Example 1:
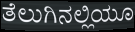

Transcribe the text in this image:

ತೆಲುಗಿನಲ್ಲಿಯೂ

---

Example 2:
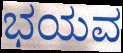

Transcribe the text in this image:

ಭಯವ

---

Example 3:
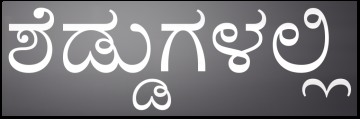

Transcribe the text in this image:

ಶೆಡ್ಡುಗಳಲ್ಲಿ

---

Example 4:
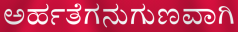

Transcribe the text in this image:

ಅರ್ಹತೆಗನುಗುಣವಾಗಿ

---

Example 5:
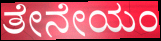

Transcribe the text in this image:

ತೇನೇಯಂ